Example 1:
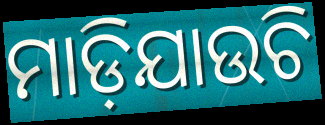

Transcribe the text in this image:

ମାଡ଼ିଯାଉଚି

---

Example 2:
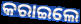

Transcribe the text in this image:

କରାଇଲେ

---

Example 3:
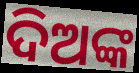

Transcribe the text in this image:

ଦିଅଙ୍କ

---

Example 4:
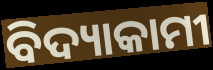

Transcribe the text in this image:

ବିଦ୍ୟାକାମୀ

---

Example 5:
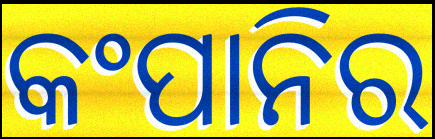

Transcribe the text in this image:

କଂପାନିର